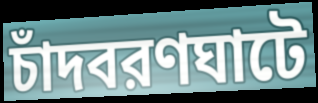
চাঁদবরণঘাটে